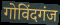
गोविंदगंज